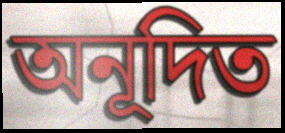
অনূদিত